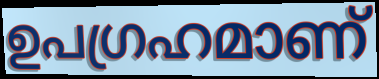
ഉപഗ്രഹമാണ്